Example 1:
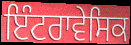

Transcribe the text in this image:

ਇੰਟਰਾਵੇਸਿਕ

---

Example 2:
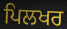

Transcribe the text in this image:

ਪਿਲਖਰ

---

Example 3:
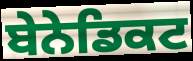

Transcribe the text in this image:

ਬੇਨੇਡਿਕਟ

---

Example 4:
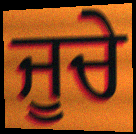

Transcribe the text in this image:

ਜੂਚੇ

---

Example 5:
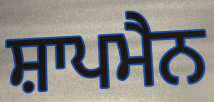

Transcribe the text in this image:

ਸ਼ਾਪਮੈਨ